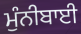
ਮੁੰਨੀਬਾਈ